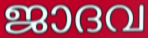
ജാദവ